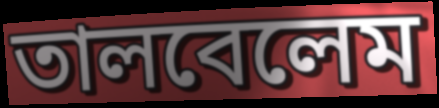
তালবেলেম